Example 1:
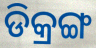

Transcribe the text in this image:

ଡିକ୍ରଙ୍ଗ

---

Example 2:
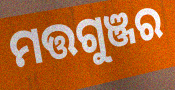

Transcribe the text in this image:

ମତ୍ତଗୁଞ୍ଜର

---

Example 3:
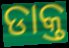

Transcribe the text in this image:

ଡାକ୍ତ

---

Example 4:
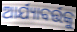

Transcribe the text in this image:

ଆର୍ଯ୍ୟାବର୍ତ୍ତକୁ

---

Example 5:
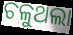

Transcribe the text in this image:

ଚଳୁଥଲା